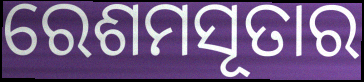
ରେଶମସୂତାର